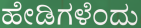
ಹೇಡಿಗಳೆಂದು